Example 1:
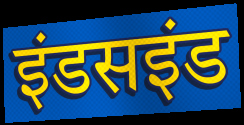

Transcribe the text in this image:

इंडसइंड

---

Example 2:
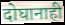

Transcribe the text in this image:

दोघानाही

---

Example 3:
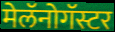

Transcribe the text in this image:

मेलॅनोगॅस्टर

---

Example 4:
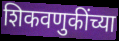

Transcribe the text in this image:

शिकवणुकींच्या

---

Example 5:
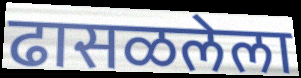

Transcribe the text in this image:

ढासळलेला